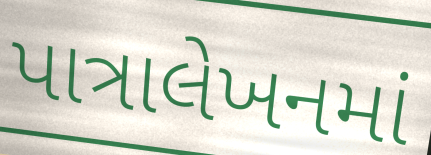
પાત્રાલેખનમાં